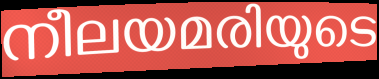
നീലയമരിയുടെ